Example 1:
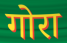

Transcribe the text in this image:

गोरा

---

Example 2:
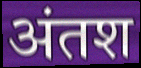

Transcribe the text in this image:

अंतश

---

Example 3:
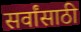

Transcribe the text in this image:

सर्वांसाठी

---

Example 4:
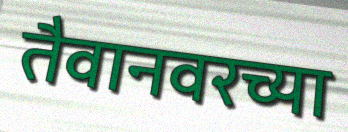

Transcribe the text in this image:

तैवानवरच्या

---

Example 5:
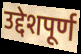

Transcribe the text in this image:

उद्देशपूर्ण